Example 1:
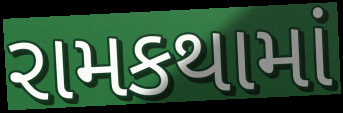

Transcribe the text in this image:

રામકથામાં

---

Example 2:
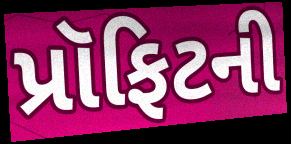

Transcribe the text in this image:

પ્રૉફિટની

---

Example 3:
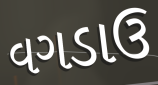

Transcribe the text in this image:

વગડાઉ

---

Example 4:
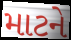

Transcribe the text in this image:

માટને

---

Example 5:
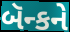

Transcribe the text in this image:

બૅન્કને